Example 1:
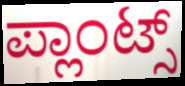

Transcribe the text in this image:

ಪ್ಲಾಂಟ್ಸ್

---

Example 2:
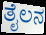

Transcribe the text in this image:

ತೈಲನ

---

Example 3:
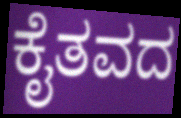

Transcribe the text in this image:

ಕೈತವದ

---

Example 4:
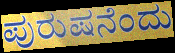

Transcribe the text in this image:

ಪುರುಷನೆಂದು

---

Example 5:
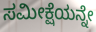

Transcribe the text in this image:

ಸಮೀಕ್ಷೆಯನ್ನೇ